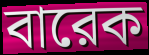
বারেক